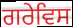
ਗਰੇਵਿਸ